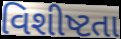
વિશીષ્ટતા